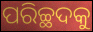
ପରିଚ୍ଛଦକୁ